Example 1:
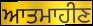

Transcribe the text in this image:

ਆਤਮਾਹੀਣ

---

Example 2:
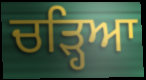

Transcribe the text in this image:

ਚਡ਼੍ਹਿਆ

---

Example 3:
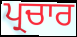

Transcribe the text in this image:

ਪ੍ਰਚਾਰ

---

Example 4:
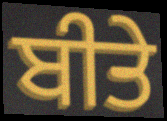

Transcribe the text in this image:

ਬੀਤੇ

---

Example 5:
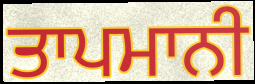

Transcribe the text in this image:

ਤਾਪਮਾਨੀ